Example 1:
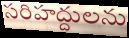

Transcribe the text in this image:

సరిహద్దులను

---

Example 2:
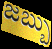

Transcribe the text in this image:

జబ్బు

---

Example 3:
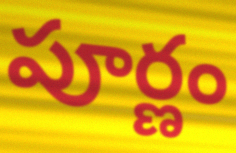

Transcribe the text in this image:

పూర్ణం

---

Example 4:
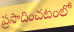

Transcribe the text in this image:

ప్రసాదించటంలో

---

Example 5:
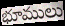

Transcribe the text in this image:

భూములు